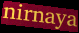
nirnaya